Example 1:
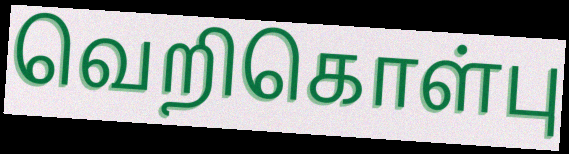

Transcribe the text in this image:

வெறிகொள்பு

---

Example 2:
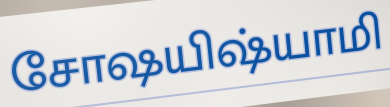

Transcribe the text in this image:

சோஷயிஷ்யாமி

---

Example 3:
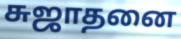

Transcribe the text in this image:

சுஜாதனை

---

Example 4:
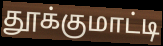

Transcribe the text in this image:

தூக்குமாட்டி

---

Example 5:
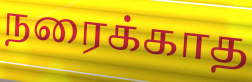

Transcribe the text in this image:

நரைக்காத